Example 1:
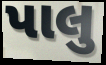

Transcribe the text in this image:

પાલુ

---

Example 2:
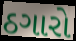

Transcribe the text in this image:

ઠગારો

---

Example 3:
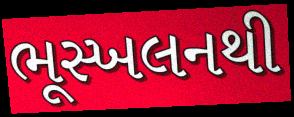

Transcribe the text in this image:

ભૂસ્ખલનથી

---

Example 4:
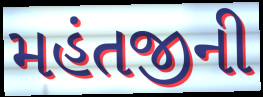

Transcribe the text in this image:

મહંતજીની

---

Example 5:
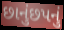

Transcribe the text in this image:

છાનુંછપનું